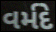
વર્મદે